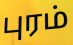
புரம்